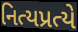
નિત્યપ્રત્યે